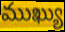
ముఖ్యు